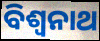
ବିଶ୍ଵନାଥ